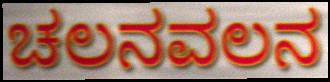
ಚಲನವಲನ